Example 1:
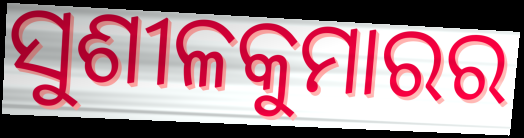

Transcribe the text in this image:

ସୁଶୀଳକୁମାରର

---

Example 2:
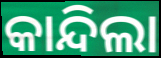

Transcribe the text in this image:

କାନ୍ଦିଲା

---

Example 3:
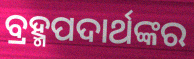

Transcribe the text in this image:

ବ୍ରହ୍ମପଦାର୍ଥଙ୍କର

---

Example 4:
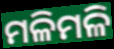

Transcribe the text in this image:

ମଳିମଳି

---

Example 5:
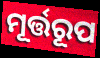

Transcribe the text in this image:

ମୂର୍ତ୍ତରୂପ